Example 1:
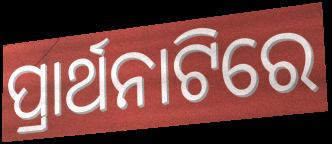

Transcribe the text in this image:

ପ୍ରାର୍ଥନାଟିରେ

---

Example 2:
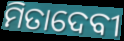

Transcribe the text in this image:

ମିତାଦେବୀ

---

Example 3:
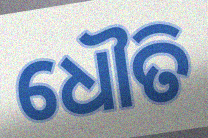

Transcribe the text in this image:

ଧୌତି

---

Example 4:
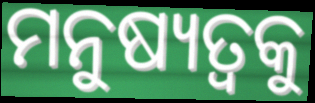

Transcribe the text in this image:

ମନୁଷ୍ୟତ୍ୱକୁ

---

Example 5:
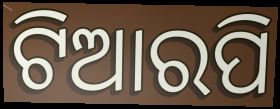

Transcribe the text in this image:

ଟିଆରପି